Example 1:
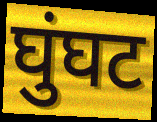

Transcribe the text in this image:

घुंघट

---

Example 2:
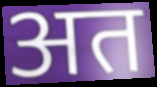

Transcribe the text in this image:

अत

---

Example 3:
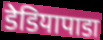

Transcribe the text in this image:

डेडियापाडा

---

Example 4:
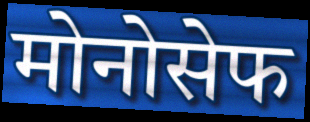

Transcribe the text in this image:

मोनोसेफ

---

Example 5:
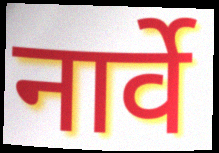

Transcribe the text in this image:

नार्वे